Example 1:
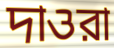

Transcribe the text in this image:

দাওরা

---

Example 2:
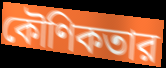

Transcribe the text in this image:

কৌণিকতার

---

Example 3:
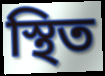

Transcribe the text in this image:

স্থিত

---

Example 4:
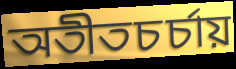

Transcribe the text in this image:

অতীতচর্চায়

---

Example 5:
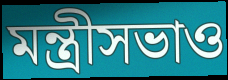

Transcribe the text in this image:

মন্ত্রীসভাও